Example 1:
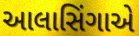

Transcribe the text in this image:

આલાસિંગાએ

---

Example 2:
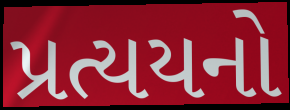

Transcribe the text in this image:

પ્રત્યયનો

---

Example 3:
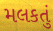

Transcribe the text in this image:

મલકતું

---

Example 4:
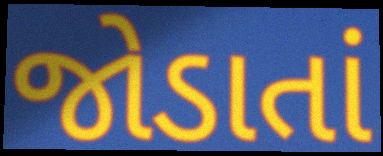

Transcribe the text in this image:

જોડાતાં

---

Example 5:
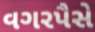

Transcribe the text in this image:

વગરપૈસે